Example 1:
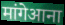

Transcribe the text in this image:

मांगेआना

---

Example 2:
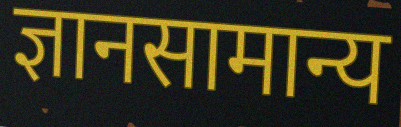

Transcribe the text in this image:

ज्ञानसामान्य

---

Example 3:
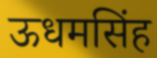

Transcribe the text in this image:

ऊधमसिंह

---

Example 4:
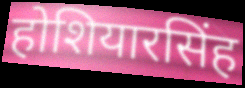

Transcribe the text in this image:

होशियारसिंह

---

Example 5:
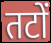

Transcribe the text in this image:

तटों